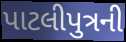
પાટલીપુત્રની